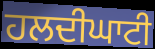
ਹਲਦੀਘਾਟੀ